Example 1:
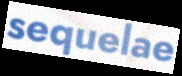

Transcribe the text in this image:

sequelae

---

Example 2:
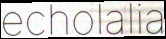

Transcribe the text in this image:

echolalia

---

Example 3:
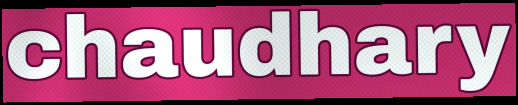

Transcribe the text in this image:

chaudhary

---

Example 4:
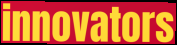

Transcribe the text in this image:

innovators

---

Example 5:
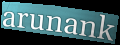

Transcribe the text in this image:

arunank